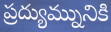
ప్రద్యుమ్నునికి